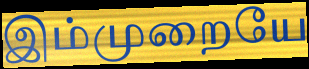
இம்முறையே